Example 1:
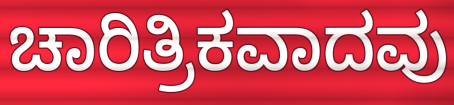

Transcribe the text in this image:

ಚಾರಿತ್ರಿಕವಾದವು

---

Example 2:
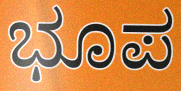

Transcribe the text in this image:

ಭೂಪ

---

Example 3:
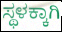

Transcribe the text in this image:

ಸ್ಥಳಕ್ಕಾಗಿ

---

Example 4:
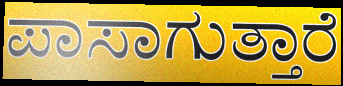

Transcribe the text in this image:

ಪಾಸಾಗುತ್ತಾರೆ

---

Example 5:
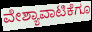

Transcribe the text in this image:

ವೇಶ್ಯಾವಾಟಿಕೆಗೂ